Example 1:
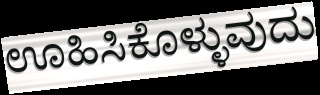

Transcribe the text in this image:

ಊಹಿಸಿಕೊಳ್ಳುವುದು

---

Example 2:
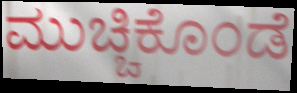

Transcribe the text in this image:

ಮುಚ್ಚಿಕೊಂಡೆ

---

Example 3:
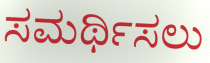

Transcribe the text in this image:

ಸಮರ್ಥಿಸಲು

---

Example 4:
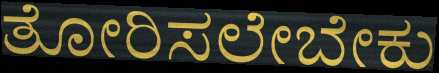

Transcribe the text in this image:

ತೋರಿಸಲೇಬೇಕು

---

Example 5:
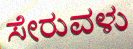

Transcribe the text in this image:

ಸೇರುವಳು